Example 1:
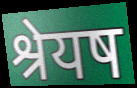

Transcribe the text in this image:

श्रेयष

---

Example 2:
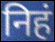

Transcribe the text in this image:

निहं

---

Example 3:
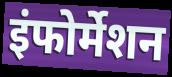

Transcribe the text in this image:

इंफोर्मेशन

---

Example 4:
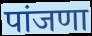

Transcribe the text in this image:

पांजणा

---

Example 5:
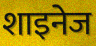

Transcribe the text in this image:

शाइनेज